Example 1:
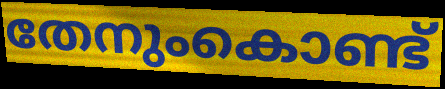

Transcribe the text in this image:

തേനുംകൊണ്ട്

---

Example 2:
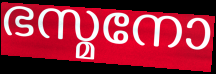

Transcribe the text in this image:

ഭസ്മനോ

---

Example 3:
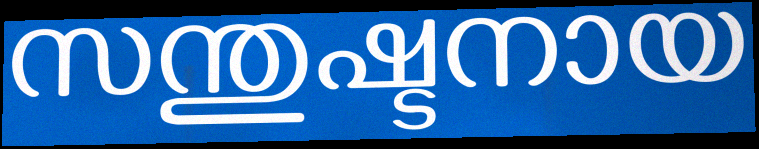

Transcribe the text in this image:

സന്തുഷ്ടനായ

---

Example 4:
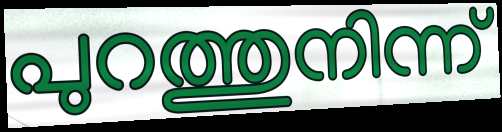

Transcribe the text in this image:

പുറത്തുനിന്ന്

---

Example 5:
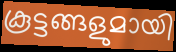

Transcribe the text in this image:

കൂട്ടങ്ങളുമായി